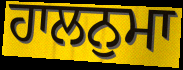
ਹਾਲਨੁਮਾ